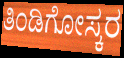
ತಿಂಡಿಗೋಸ್ಕರ